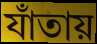
যাঁতায়